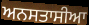
ਅਨਸਤਾਸੀਆ